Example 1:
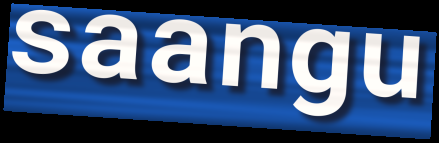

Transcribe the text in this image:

saangu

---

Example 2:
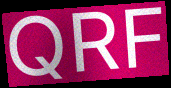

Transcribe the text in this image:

QRF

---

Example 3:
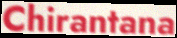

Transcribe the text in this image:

Chirantana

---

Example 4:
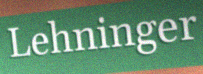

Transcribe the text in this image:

Lehninger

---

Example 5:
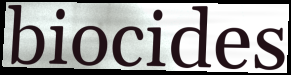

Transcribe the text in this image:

biocides